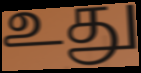
உது